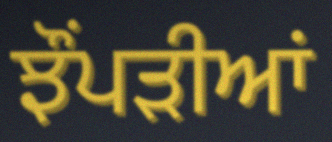
ਝੌਂਪੜੀਆਂ